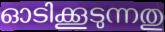
ഓടിക്കൂടുന്നതു